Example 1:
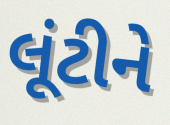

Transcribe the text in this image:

લૂંટીને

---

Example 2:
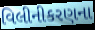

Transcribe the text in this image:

વિલીનીકરણના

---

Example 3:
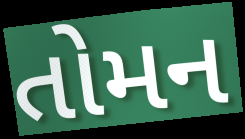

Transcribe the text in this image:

તોમન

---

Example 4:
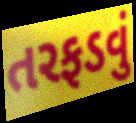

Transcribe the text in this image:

તરફડવું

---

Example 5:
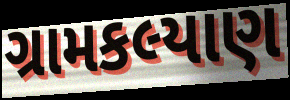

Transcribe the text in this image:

ગ્રામકલ્યાણ